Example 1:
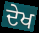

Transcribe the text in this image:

ਦੇਖ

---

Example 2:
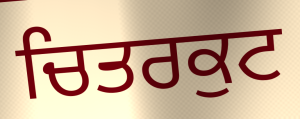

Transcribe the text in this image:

ਚਿਤਰਕੁਟ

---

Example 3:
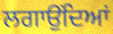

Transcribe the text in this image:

ਲਗਾਉਂਦਿਆਂ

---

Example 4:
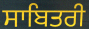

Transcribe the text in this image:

ਸਾਬਿਤਰੀ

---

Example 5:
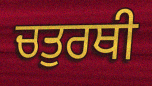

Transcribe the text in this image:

ਚਤੁਰਥੀ